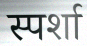
स्पर्शा